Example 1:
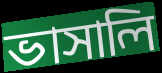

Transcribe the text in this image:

ভাসালি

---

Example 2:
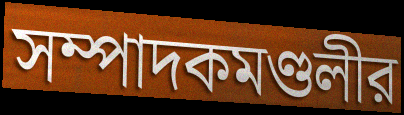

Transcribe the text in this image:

সম্পাদকমণ্ডলীর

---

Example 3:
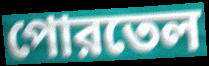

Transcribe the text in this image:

পোরতেল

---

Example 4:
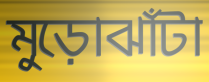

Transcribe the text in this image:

মুড়োঝাঁটা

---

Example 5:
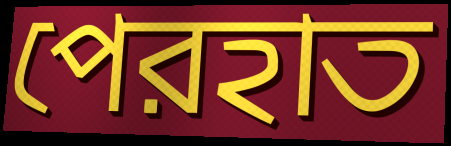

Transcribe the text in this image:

পেরহাত